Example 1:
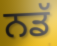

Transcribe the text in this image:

ਨਡੱ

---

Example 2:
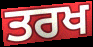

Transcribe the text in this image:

ਤਰਖ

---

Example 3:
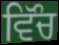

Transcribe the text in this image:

ਵਿੱੰਚ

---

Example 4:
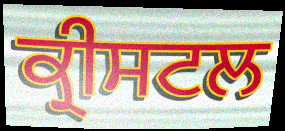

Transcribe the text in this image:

ਕ੍ਰੀਸਟਲ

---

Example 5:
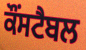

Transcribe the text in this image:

ਕੌਂਸਟੈਬਲ